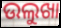
ଉଲୁଖା